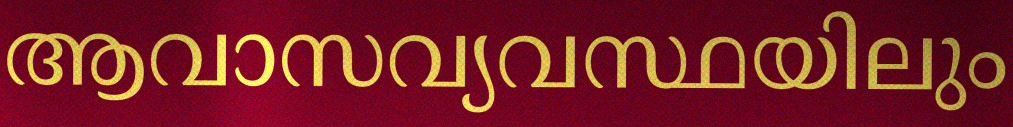
ആവാസവ്യവസ്ഥയിലും